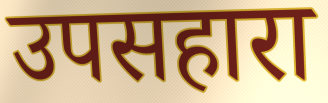
उपसहारा